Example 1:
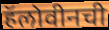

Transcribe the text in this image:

हॅलोवीनची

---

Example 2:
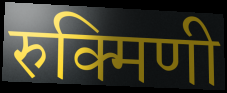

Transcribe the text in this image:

रुक्मिणी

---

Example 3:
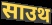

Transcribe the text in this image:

साउथ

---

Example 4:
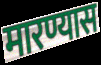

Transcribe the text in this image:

मारण्यास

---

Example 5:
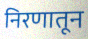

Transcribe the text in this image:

निरणातून